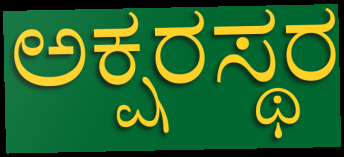
ಅಕ್ಷರಸ್ಥರ